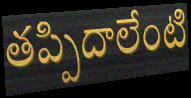
తప్పిదాలేంటి